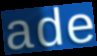
ade